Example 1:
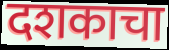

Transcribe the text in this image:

दशकाचा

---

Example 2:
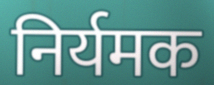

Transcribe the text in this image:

निर्यमक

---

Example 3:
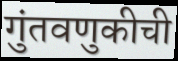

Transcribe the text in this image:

गुंतवणुकीची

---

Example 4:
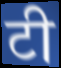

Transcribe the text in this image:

टी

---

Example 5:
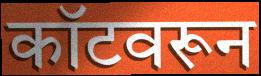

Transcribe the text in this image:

कॉटवरून